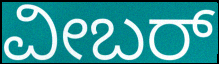
ವೀಬರ್